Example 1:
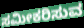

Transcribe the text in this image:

ಸಮೀಕರಿಸುವ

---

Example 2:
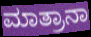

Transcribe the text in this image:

ಮಾತ್ರಾನಾ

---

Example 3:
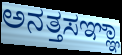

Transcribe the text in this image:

ಅನತ್ತಸಞ್ಞಾ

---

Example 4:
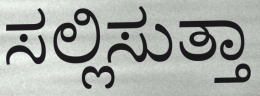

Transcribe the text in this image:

ಸಲ್ಲಿಸುತ್ತಾ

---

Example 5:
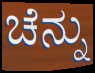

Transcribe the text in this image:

ಚೆನ್ನು